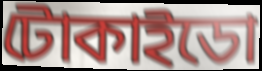
টোকাইডো